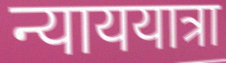
न्याययात्रा